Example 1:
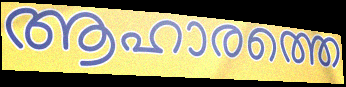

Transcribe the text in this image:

ആഹാരത്തെ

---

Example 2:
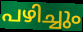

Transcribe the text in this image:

പഴിച്ചും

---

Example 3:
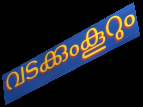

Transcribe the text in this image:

വടക്കുംകൂറും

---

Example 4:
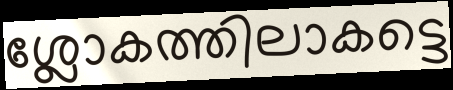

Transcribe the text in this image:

ശ്ലോകത്തിലാകട്ടെ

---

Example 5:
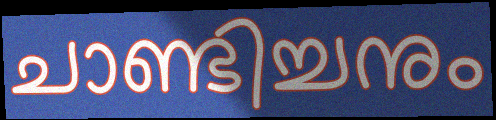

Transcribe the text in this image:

ചാണ്ടിച്ചനും